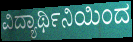
ವಿದ್ಯಾರ್ಥಿನಿಯಿಂದ